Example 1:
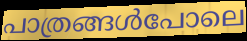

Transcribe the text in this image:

പാത്രങ്ങൾപോലെ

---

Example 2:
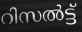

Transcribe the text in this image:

റിസൽട്ട്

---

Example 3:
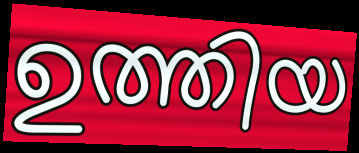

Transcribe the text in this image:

ഉത്തിയ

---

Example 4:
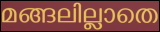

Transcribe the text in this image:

മങ്ങലില്ലാതെ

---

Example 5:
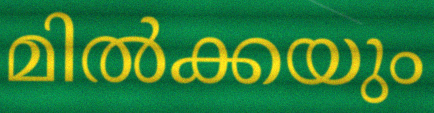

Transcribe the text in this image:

മിൽക്കയും